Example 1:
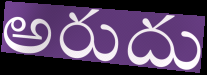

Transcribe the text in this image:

అరుదు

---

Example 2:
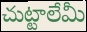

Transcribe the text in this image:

చుట్టాలేమీ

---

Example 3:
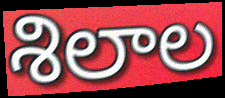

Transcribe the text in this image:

శిలాల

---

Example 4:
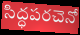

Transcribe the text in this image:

సిద్ధపరచెనో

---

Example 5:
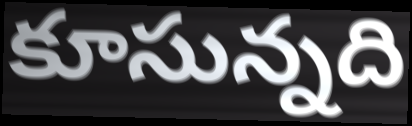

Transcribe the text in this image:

కూసున్నది